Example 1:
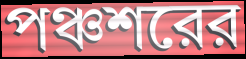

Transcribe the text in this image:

পঞ্চশরের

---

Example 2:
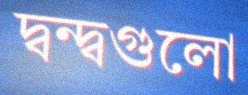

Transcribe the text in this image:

দ্বন্দ্বগুলো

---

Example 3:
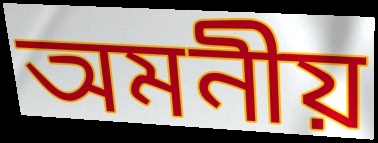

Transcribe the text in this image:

অমনীয়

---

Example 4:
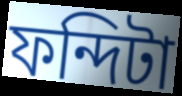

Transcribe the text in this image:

ফন্দিটা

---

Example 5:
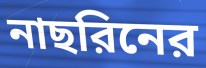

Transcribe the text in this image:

নাছরিনের